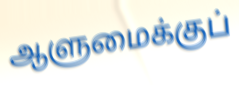
ஆளுமைக்குப்